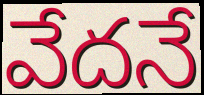
వేదనే